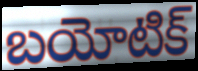
బయోటిక్